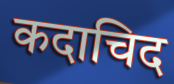
कदाचिद